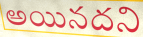
అయినదని